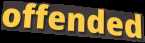
offended